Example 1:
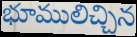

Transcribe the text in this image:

భూములిచ్చిన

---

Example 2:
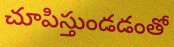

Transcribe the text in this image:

చూపిస్తుండడంతో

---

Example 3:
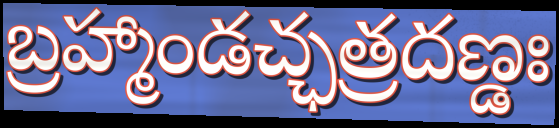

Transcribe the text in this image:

బ్రహ్మాండచ్ఛత్రదణ్డః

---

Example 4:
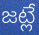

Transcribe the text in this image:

జట్లే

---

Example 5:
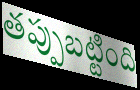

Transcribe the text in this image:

తప్పుబట్టింది